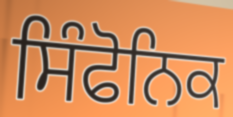
ਸਿੰਫੋਨਿਕ